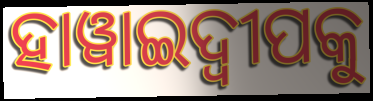
ହାୱାଇଦ୍ଵୀପକୁ